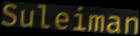
Suleiman